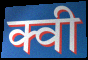
क्वी